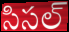
సిసల్